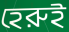
হেৰুই